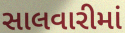
સાલવારીમાં